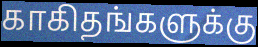
காகிதங்களுக்கு